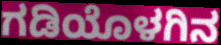
ಗಡಿಯೊಳಗಿನ